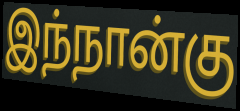
இந்நான்கு